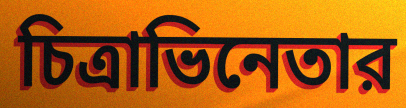
চিত্রাভিনেতার